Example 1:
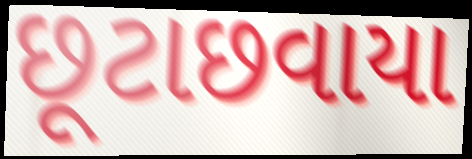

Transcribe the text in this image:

છૂટાછવાયા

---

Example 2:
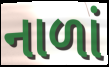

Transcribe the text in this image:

નાળાં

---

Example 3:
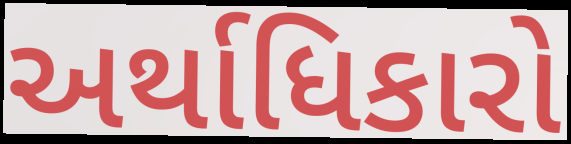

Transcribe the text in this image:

અર્થાધિકારો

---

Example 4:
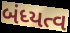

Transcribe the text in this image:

બંધ્યત્વ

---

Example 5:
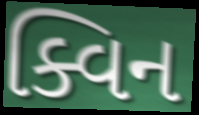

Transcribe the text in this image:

ક્વિન